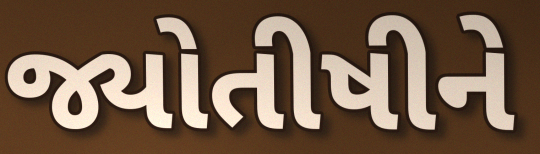
જ્યોતીષીને